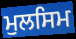
ਮੁਲਸਿਮ